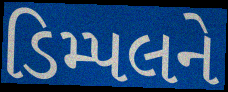
ડિમ્પલને